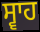
ਸ੍ਵਾਹ